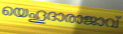
യെഹൂദാരാജാവ്